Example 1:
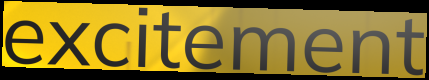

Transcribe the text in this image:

excitement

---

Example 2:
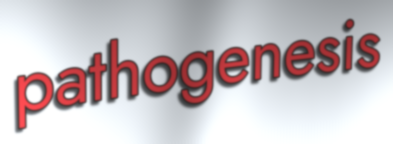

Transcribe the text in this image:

pathogenesis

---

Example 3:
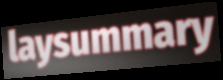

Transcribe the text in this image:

laysummary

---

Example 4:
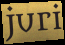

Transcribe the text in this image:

juri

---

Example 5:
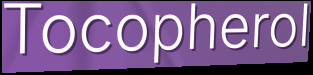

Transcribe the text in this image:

Tocopherol